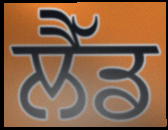
ਲੈੱਡ